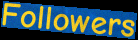
Followers